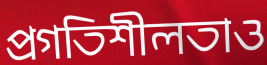
প্রগতিশীলতাও